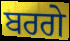
ਬਰਗੇ